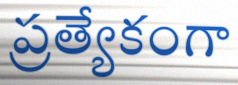
ప్రత్యేకంగా